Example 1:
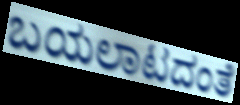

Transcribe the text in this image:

ಬಯಲಾಟದಂತೆ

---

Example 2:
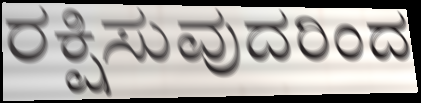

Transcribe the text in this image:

ರಕ್ಷಿಸುವುದರಿಂದ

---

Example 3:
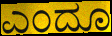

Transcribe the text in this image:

ಎಂದೂ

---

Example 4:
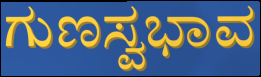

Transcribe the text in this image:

ಗುಣಸ್ವಭಾವ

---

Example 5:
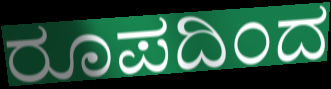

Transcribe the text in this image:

ರೂಪದಿಂದ